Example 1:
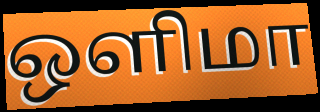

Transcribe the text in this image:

ஒளிமா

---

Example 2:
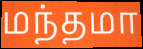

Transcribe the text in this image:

மந்தமா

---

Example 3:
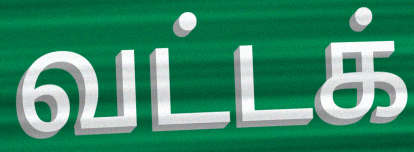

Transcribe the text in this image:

வட்டக்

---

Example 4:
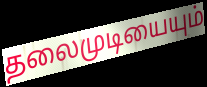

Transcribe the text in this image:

தலைமுடியையும்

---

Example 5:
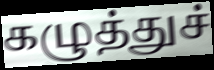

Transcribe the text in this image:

கழுத்துச்